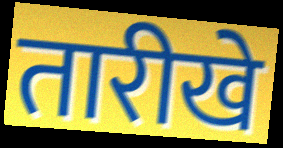
तारीखे